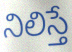
నిలిస్తే